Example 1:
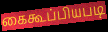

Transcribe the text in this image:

கைகூப்பியபடி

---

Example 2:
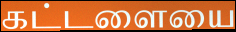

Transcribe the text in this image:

கட்டளையை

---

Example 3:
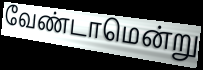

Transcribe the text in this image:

வேண்டாமென்று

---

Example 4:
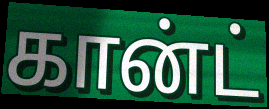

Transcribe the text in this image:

கான்ட்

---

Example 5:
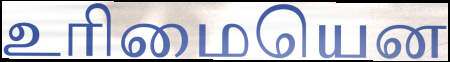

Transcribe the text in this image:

உரிமையென